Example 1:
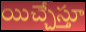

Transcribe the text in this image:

యిచ్చేస్తూ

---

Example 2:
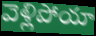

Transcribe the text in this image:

వెళ్లిపోయా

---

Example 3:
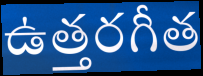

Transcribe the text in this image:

ఉత్తరగీత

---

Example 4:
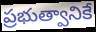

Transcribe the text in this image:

ప్రభుత్వానికే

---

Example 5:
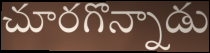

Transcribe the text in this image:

చూరగొన్నాడు